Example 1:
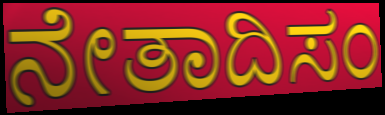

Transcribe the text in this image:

ನೇತಾದಿಸಂ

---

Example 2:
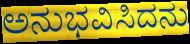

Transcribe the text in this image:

ಅನುಭವಿಸಿದನು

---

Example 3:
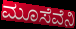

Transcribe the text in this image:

ಮೂಸೆವೆನಿ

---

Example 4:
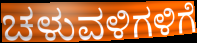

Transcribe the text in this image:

ಚಳುವಳಿಗಳಿಗೆ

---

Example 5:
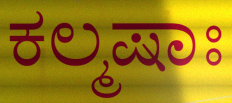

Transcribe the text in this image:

ಕಲ್ಮಷಾಃ